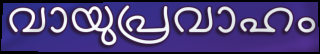
വായുപ്രവാഹം